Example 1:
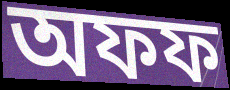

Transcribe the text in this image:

অফফ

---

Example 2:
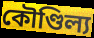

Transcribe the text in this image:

কৌণ্ডিল্য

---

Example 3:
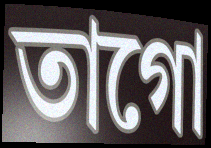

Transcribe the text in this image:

তাগো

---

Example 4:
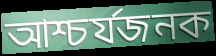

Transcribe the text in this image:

আশ্চর্যজনক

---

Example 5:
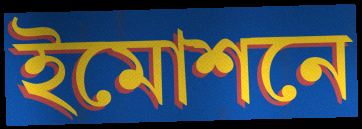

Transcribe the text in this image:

ইমোশনে